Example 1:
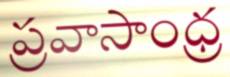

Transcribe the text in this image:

ప్రవాసాంధ్ర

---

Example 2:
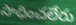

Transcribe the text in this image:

సాధించలేరు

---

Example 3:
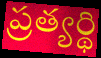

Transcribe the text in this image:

ప్రత్యర్థి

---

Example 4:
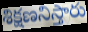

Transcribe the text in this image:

శిక్షణనిస్తారు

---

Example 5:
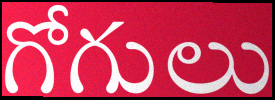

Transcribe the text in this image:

గోగులు